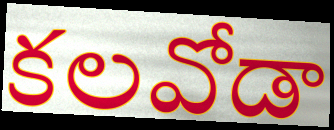
కలవోడా